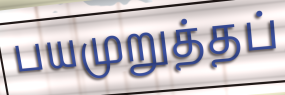
பயமுறுத்தப்